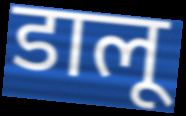
डालू